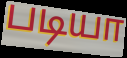
படியா